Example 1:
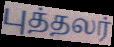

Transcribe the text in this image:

புத்தலர்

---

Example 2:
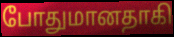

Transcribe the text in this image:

போதுமானதாகி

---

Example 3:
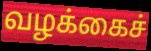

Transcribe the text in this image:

வழக்கைச்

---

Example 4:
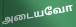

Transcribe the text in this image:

அடையவோ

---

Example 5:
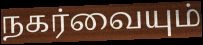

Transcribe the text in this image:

நகர்வையும்